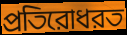
প্রতিরোধরত